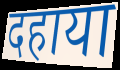
दहाया